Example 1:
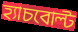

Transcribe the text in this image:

হ্যাচবোল্ট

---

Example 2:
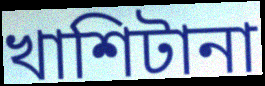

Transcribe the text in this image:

খাশিটানা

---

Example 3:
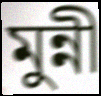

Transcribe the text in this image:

মুন্নী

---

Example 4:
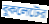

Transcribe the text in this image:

বুকলেটের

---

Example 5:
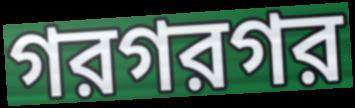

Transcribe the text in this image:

গরগরগর